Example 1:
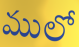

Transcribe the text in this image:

ములో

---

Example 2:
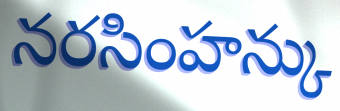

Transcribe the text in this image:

నరసింహన్కు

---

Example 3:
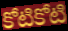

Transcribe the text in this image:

కోటికోటి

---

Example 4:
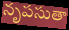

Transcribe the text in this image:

నృపసుతా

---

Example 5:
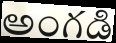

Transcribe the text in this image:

అంగడి